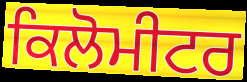
ਕਿਲੋਮੀਟਰ